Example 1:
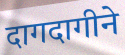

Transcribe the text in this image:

दागदागीने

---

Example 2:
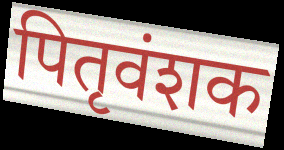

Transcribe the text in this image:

पितृवंशक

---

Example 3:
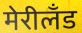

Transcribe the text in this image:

मेरीलँड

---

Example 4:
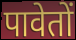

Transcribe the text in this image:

पावेतों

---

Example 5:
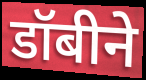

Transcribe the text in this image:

डॉबीने